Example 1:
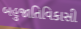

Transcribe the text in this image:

બહુજાતિવિકાસી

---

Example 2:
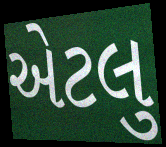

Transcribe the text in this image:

એટલુ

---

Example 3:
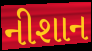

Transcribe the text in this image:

નીશાન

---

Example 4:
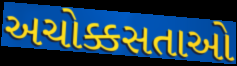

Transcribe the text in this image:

અચોક્કસતાઓ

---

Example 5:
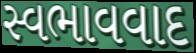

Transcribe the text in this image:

સ્વભાવવાદ